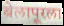
बेलापूरला